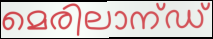
മെരിലാന്ഡ്